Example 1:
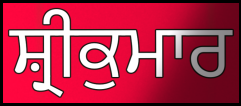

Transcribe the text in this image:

ਸ਼੍ਰੀਕੁਮਾਰ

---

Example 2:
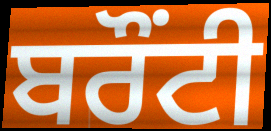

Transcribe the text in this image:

ਬਰੌਂਟੀ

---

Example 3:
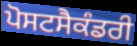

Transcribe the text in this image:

ਪੋਸਟਸੈਕੰਡਰੀ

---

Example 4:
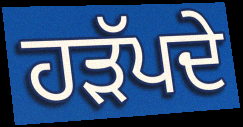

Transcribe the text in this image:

ਹੜੱਪਦੇ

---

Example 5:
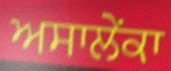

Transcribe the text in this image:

ਅਸਾਲੇਂਕਾ